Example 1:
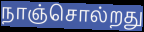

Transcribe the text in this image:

நாஞ்சொல்றது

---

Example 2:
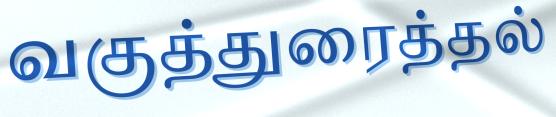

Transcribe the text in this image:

வகுத்துரைத்தல்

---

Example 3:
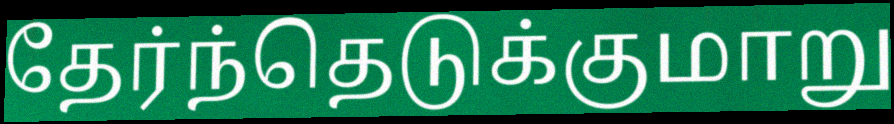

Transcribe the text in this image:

தேர்ந்தெடுக்குமாறு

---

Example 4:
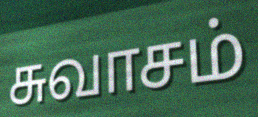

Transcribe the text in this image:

சுவாசம்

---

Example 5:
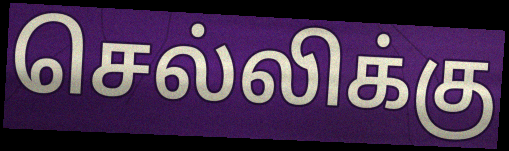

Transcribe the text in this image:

செல்லிக்கு